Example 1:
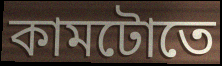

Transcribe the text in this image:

কামটোতে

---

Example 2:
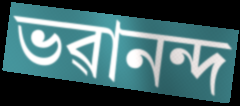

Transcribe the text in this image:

ভৱানন্দ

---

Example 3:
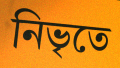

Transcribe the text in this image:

নিভৃতে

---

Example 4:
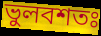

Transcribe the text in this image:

ভুলবশতঃ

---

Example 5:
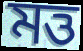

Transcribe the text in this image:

মত্ত